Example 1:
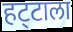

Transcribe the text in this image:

हट्‌टाला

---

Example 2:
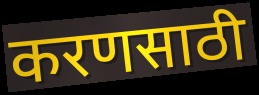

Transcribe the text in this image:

करणसाठी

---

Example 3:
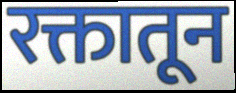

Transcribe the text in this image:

रक्तातून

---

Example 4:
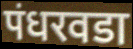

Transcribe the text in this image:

पंधरवडा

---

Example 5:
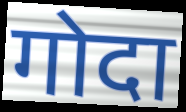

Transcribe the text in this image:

गोदा